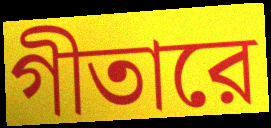
গীতারে